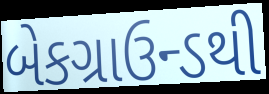
બેકગ્રાઉન્ડથી